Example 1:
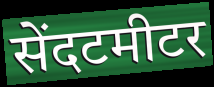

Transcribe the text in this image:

सेंदटमीटर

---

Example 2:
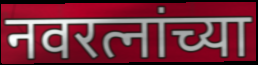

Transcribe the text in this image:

नवरत्नांच्या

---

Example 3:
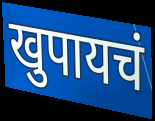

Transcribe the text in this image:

खुपायचं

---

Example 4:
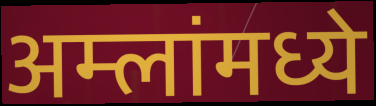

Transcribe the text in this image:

अम्लांमध्ये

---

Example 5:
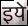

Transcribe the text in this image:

इये